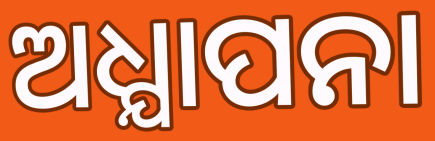
ଅଧ୍ଯାପନା